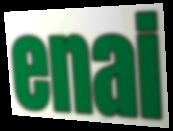
enai